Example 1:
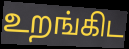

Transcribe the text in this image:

உறங்கிட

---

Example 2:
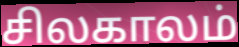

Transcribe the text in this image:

சிலகாலம்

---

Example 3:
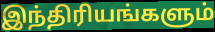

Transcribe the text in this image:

இந்திரியங்களும்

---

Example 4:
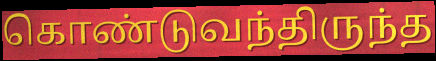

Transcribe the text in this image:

கொண்டுவந்திருந்த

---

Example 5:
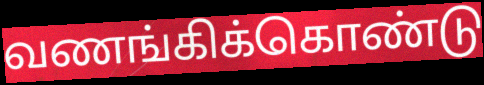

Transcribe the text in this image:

வணங்கிக்கொண்டு